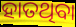
ହାତଥିବା